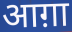
आग़ा